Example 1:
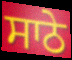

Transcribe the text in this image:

ਸਾਠੇ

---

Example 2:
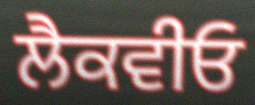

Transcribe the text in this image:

ਲੈਕਵੀਓ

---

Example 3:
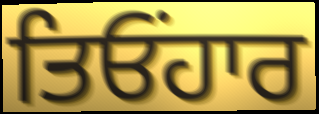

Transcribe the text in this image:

ਤਿਓਂਹਾਰ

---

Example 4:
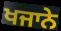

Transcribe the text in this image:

ਖਜਾਨੇ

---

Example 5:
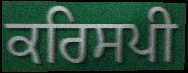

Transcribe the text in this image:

ਕਰਿਸਪੀ